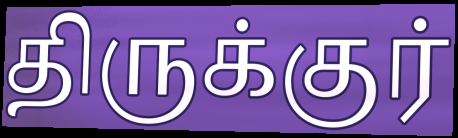
திருக்குர்